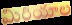
మిరియాల